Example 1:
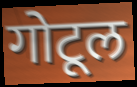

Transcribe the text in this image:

गोटूल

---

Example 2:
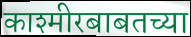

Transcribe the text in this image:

काश्मीरबाबतच्या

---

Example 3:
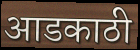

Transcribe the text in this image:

आडकाठी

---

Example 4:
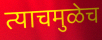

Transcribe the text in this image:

त्याचमुळेच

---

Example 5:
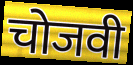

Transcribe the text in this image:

चोजवी